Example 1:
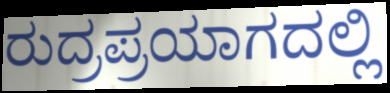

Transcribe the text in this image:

ರುದ್ರಪ್ರಯಾಗದಲ್ಲಿ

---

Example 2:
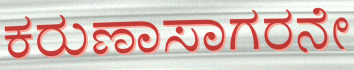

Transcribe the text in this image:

ಕರುಣಾಸಾಗರನೇ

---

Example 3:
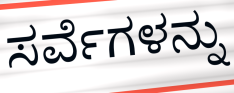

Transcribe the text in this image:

ಸರ್ವೆಗಳನ್ನು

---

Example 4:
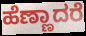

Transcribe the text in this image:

ಹೆಣ್ಣಾದರೆ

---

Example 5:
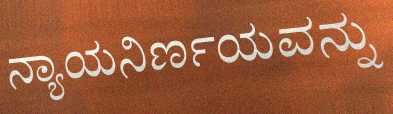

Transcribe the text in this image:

ನ್ಯಾಯನಿರ್ಣಯವನ್ನು